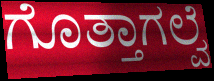
ಗೊತ್ತಾಗಲ್ವೆ